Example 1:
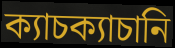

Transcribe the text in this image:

ক্যাচক্যাচানি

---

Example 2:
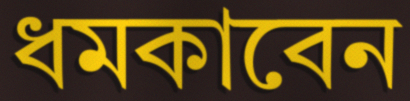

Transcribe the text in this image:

ধমকাবেন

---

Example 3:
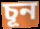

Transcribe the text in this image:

চূন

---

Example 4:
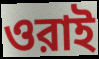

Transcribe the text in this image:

ওরাই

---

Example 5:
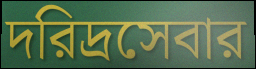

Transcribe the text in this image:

দরিদ্রসেবার